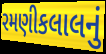
રમણીકલાલનું